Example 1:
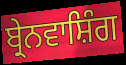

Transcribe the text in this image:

ਬ੍ਰੇਨਵਾਸ਼ਿੰਗ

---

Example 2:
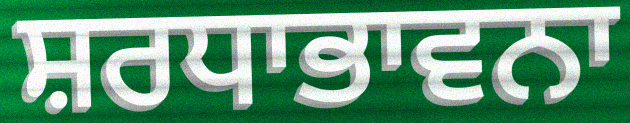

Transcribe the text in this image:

ਸ਼ਰਧਾਭਾਵਨਾ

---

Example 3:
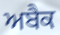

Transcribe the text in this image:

ਅਬੈਕ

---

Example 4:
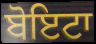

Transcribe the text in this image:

ਬੋਇਟਾ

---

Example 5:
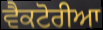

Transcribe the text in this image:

ਵੈਕਟੋਰੀਆ